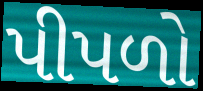
પીપળો